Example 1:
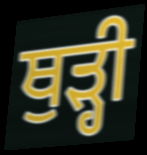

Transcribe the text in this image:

ਥੁੜ੍ਹੀ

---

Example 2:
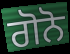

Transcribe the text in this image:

ਗੋਨੋ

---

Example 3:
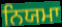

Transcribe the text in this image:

ਨਿਯਮਾ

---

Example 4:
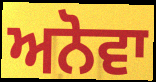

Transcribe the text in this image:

ਅਨੋਵਾ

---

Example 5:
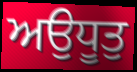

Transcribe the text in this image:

ਅਉਧੂਤੁ